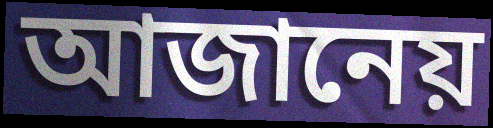
আজানেয়